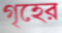
গৃহের